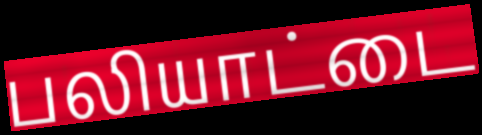
பலியாட்டை